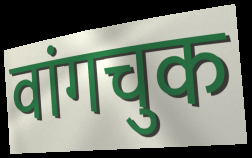
वांगचुक